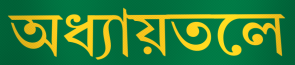
অধ্যায়তলে